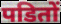
पडितों